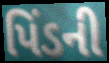
પિંડની